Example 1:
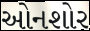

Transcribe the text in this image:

ઓનશોર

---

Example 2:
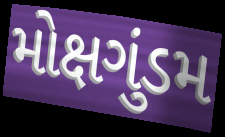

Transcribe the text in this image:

મોક્ષગુંડમ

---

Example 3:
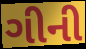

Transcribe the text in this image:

ગીની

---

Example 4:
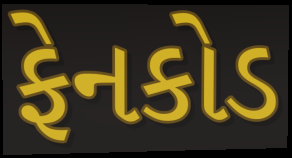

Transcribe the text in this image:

ફેનકોડ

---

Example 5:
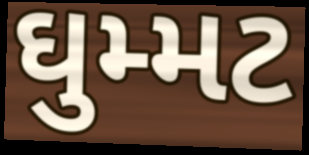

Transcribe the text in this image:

ઘુમ્મટ